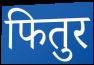
फितुर